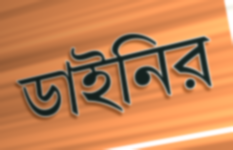
ডাইনির